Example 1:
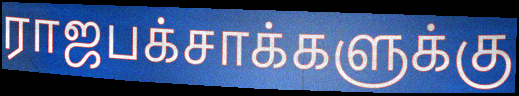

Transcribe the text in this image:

ராஜபக்சாக்களுக்கு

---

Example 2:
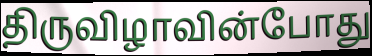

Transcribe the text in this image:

திருவிழாவின்போது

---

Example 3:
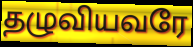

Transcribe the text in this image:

தழுவியவரே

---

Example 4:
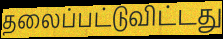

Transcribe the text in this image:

தலைப்பட்டுவிட்டது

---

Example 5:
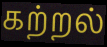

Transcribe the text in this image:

கற்றல்